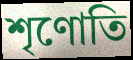
শৃণোতি